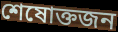
শেষোক্তজন